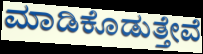
ಮಾಡಿಕೊಡುತ್ತೇವೆ